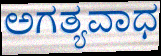
ಅಗತ್ಯವಾಧ